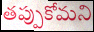
తప్పుకోమని